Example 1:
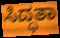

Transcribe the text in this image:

ಸಿದ್ಧತಾ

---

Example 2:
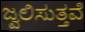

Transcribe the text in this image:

ಜ್ವಲಿಸುತ್ತವೆ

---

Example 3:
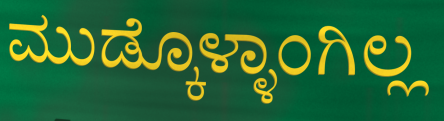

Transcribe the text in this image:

ಮುಡ್ಕೊಳ್ಳಾಂಗಿಲ್ಲ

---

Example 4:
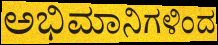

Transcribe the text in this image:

ಅಭಿಮಾನಿಗಳಿಂದ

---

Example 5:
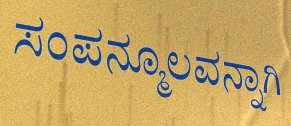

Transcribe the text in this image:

ಸಂಪನ್ಮೂಲವನ್ನಾಗಿ